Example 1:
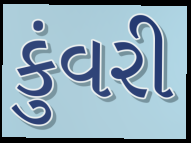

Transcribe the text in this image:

કુંવરી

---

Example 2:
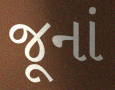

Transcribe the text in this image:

જૂનાં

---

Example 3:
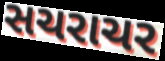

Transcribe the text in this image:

સચરાચર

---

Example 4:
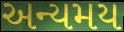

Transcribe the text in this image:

અન્યમય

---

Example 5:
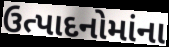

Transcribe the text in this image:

ઉત્પાદનોમાંના